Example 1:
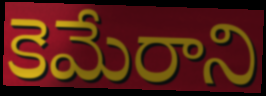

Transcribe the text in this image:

కెమేరాని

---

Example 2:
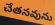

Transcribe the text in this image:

చేతనవును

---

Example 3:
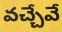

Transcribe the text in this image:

వచ్చేవే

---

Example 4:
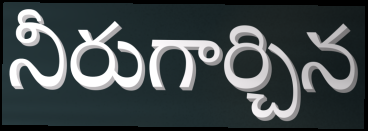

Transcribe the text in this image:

నీరుగార్చిన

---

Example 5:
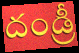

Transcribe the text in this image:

దండ్రీ